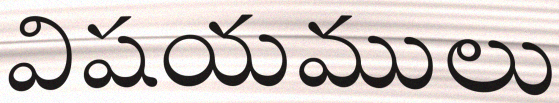
విషయములు